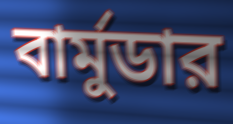
বার্মুডার